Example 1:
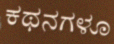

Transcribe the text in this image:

ಕಥನಗಳೂ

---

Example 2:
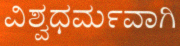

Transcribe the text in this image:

ವಿಶ್ವಧರ್ಮವಾಗಿ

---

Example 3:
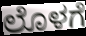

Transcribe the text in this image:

ಲೊಳಗೆ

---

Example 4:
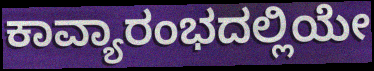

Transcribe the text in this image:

ಕಾವ್ಯಾರಂಭದಲ್ಲಿಯೇ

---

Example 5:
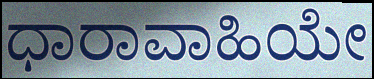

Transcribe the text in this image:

ಧಾರಾವಾಹಿಯೇ